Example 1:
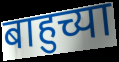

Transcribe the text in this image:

बाहुच्या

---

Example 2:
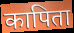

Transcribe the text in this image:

कापिता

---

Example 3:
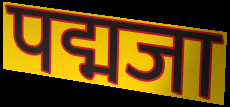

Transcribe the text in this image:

पद्मजा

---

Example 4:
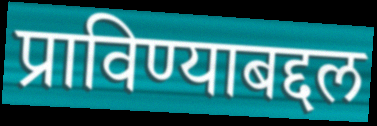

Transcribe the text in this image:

प्राविण्याबद्दल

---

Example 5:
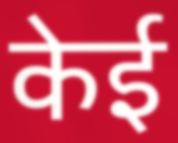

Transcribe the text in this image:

केई